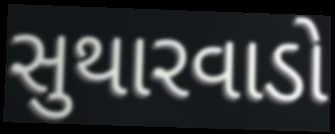
સુથારવાડો